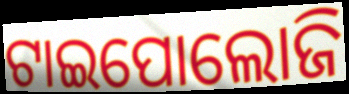
ଟାଇପୋଲୋଜି